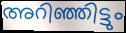
അറിഞ്ഞിട്ടും